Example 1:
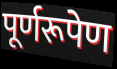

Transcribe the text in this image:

पूर्णरूपेण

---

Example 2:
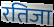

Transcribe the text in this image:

रतिजा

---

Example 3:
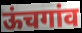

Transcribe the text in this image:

ऊंचगांव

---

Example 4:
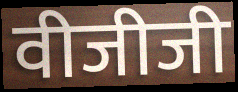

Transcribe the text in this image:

वीजीजी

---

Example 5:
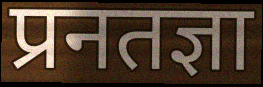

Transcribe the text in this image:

प्रनतज्ञा